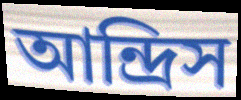
আন্দ্রিস